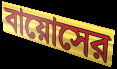
বায়োসের